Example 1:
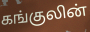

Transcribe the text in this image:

கங்குலின்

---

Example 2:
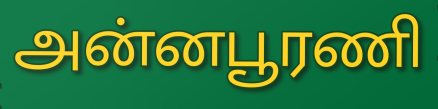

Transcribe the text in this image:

அன்னபூரணி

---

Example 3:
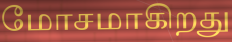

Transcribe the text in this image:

மோசமாகிறது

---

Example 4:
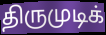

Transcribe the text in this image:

திருமுடிக்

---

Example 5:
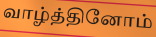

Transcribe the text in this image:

வாழ்த்தினோம்